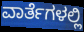
ವಾರ್ತೆಗಳಲ್ಲಿ